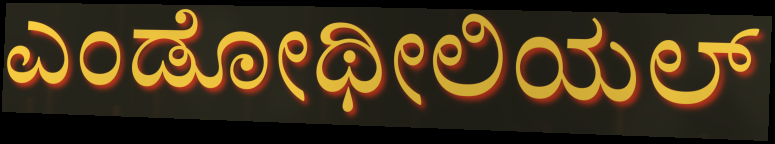
ಎಂಡೋಥೀಲಿಯಲ್